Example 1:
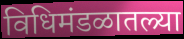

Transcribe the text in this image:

विधिमंडळातल्या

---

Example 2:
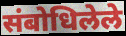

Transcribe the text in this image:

संबोधिलेले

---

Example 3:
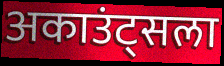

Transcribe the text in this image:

अकाउंट्सला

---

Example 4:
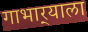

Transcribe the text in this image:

गाभार्याला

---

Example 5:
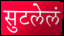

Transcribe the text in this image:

सुटलेलं